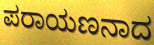
ಪರಾಯಣನಾದ